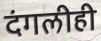
दंगलीही